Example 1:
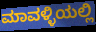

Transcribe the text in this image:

ಮಾವಳ್ಳಿಯಲ್ಲಿ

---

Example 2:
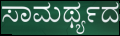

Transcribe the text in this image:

ಸಾಮರ್ಥ್ಯದ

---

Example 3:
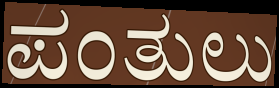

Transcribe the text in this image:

ಪಂತುಲು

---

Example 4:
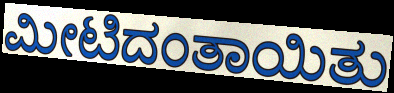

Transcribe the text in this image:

ಮೀಟಿದಂತಾಯಿತು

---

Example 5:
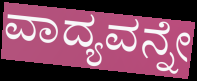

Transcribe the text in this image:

ವಾದ್ಯವನ್ನೇ